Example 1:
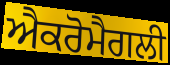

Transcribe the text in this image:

ਐਕਰੋਮੈਗਲੀ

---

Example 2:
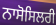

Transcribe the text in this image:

ਨਾਸੋਸਿਲਰੀ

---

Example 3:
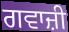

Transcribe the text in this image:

ਗਵਾਜ਼ੀ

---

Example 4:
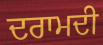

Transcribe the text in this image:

ਦਰਾਮਦੀ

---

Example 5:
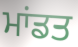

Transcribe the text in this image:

ਮਾਂਡਤ